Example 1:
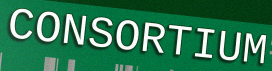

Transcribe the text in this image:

CONSORTIUM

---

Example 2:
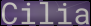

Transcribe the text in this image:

Cilia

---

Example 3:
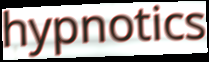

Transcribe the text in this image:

hypnotics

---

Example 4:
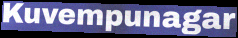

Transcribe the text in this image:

Kuvempunagar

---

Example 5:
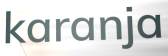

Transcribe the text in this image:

karanja